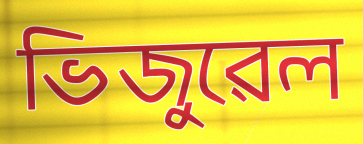
ভিজুৱেল